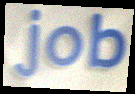
job